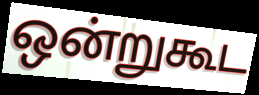
ஒன்றுகூட